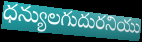
ధన్యులగుదురనియు